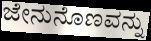
ಜೇನುನೊಣವನ್ನು